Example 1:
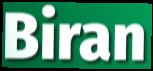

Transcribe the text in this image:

Biran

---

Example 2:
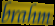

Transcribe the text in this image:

brahm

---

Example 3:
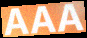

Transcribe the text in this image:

AAA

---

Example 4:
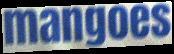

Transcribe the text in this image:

mangoes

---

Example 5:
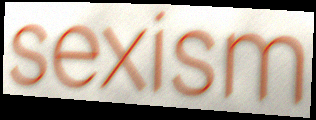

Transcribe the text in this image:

sexism